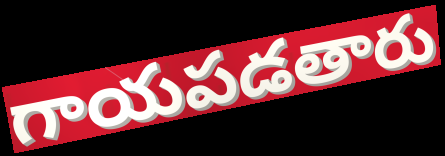
గాయపడతారు